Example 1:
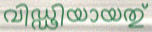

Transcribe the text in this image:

വിഡ്ഢിയായതു്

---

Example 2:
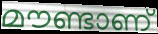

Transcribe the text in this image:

മൗണ്ടാണ്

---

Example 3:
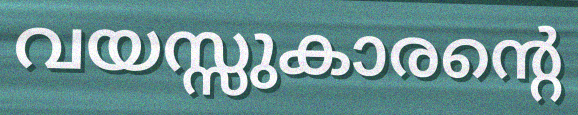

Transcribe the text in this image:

വയസ്സുകാരന്റെ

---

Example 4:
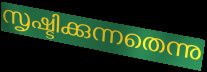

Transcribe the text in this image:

സൃഷ്ടിക്കുന്നതെന്നു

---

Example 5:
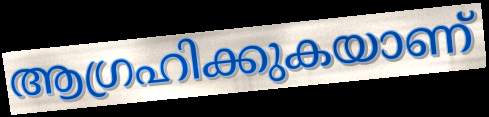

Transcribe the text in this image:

ആഗ്രഹിക്കുകയാണ്